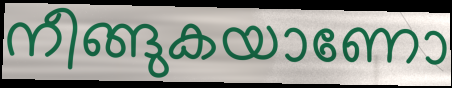
നീങ്ങുകയാണോ